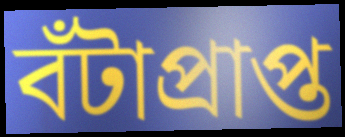
বঁটাপ্ৰাপ্ত